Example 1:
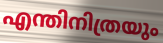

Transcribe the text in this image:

എന്തിനിത്രയും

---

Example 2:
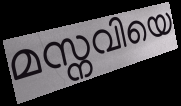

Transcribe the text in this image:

മസ്നവിയെ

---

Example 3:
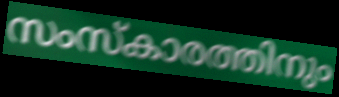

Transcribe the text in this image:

സംസ്കാരത്തിനും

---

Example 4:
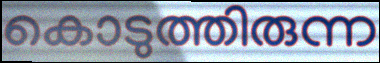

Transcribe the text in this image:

കൊടുത്തിരുന്ന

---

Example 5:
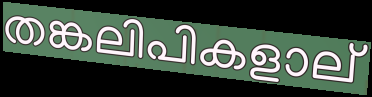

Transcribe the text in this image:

തങ്കലിപികളാല്